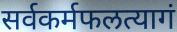
सर्वकर्मफलत्यागं